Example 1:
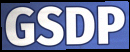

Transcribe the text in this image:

GSDP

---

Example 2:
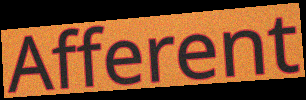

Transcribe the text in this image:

Afferent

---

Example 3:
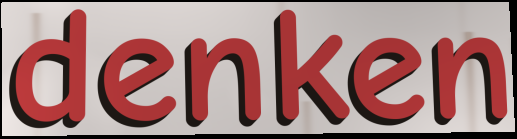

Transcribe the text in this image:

denken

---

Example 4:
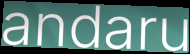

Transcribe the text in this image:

andaru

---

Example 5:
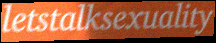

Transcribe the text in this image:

letstalksexuality